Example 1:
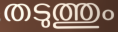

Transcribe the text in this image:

തടുത്തും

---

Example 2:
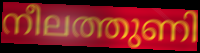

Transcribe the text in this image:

നീലത്തുണി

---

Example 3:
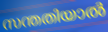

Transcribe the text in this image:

സന്തതിയാൽ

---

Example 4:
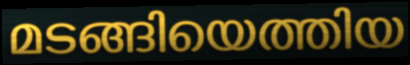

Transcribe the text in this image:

മടങ്ങിയെത്തിയ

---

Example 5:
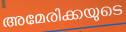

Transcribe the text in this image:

അമേരിക്കയുടെ